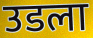
उडला